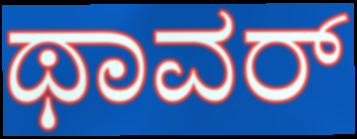
ಥಾವರ್